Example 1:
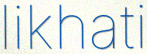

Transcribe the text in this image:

likhati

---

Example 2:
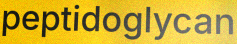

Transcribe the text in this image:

peptidoglycan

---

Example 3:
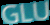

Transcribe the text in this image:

GLU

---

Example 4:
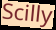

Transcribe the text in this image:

Scilly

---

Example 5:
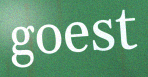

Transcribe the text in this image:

goest